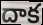
దాక